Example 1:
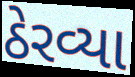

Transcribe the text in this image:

ઠેરવ્યા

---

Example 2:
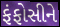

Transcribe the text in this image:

ફંફોસીને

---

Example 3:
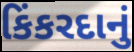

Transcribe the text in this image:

કિંકરદાનું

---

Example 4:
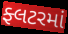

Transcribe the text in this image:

ફ્લટરમાં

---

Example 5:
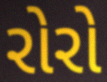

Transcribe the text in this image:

રોરો